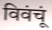
विवंचूं